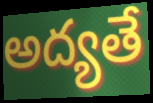
అద్యతే